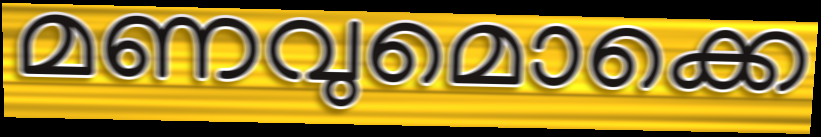
മണവുമൊക്കെ